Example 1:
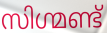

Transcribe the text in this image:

സിഗ്മണ്ട്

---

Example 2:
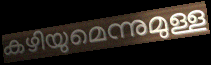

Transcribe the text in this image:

കഴിയുമെന്നുമുള്ള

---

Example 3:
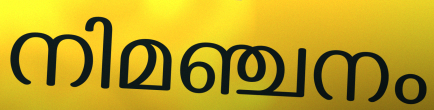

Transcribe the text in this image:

നിമഞ്ചനം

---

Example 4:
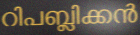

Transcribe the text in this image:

റിപബ്ലിക്കൻ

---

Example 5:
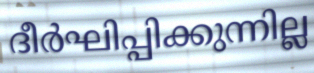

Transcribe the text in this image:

ദീർഘിപ്പിക്കുന്നില്ല